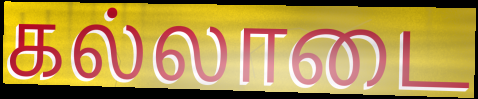
கல்லாடை